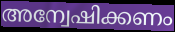
അന്വേഷിക്കണം